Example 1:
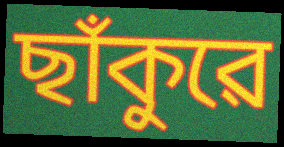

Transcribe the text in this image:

ছাঁকুৱে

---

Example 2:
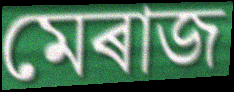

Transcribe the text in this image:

মেৰাজ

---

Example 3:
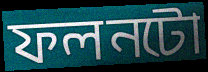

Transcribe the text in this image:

ফলনটো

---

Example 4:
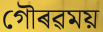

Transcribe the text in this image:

গৌৰৱময়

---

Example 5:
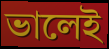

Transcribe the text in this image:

ভালেই